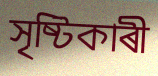
সৃষ্টিকাৰী